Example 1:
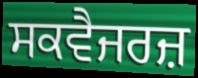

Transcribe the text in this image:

ਸਕਵੈਜਰਜ਼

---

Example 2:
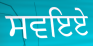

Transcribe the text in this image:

ਸਵਇਏ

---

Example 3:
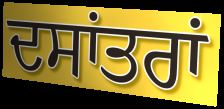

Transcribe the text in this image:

ਦਸਾਂਤਰਾਂ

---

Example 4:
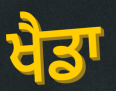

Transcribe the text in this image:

ਖੈਡਾ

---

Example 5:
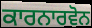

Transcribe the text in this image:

ਕਾਰਨਾਰਵੋਨ